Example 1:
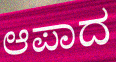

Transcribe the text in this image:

ಆಪಾದ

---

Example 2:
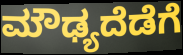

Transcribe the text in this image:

ಮೌಢ್ಯದೆಡೆಗೆ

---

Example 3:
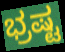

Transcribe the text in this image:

ಭ್ರಷ್ಟ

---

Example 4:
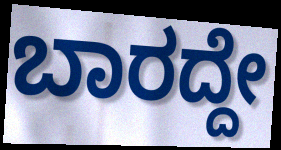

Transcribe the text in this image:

ಬಾರದ್ದೇ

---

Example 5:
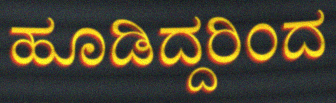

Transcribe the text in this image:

ಹೂಡಿದ್ದರಿಂದ